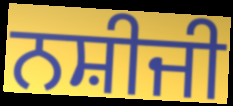
ਨਸ਼ੀਜੀ